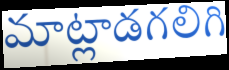
మాట్లాడగలిగి